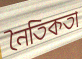
নৈতিকতা